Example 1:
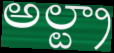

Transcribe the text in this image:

అల్ట్రా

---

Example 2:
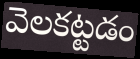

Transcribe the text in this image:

వెలకట్టడం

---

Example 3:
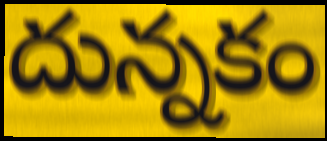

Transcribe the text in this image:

దున్నకం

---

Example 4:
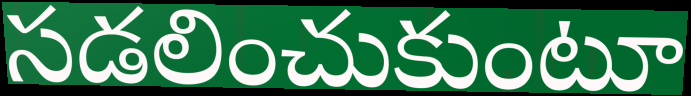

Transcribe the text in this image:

సడలించుకుంటూ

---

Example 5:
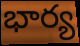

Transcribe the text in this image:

భార్య